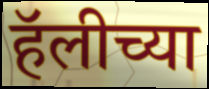
हॅलीच्या